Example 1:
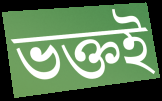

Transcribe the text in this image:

ভক্তই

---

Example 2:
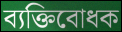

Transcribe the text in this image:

ব্যক্তিবোধক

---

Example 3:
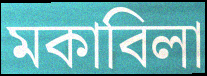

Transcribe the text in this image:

মকাবিলা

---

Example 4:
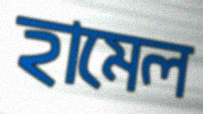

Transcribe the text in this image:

হামেল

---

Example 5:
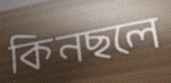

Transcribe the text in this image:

কিনছলে